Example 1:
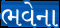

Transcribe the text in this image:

ભવેના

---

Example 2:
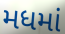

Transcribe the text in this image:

મધમાં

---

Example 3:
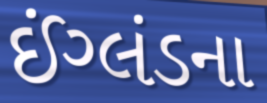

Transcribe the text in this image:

ઈંગ્લંડના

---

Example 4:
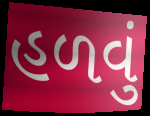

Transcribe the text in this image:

હળવું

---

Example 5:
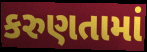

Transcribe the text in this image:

કરુણતામાં